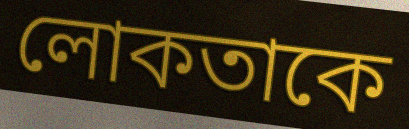
লোকতাকে